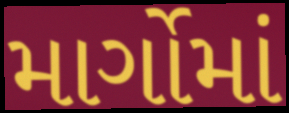
માર્ગોમાં